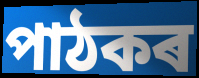
পাঠকৰ